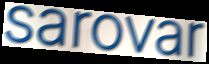
sarovar